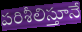
పరిశీలిస్తూనే